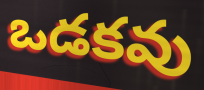
ఒడకవు